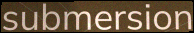
submersion